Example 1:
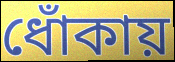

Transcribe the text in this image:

ধোঁকায়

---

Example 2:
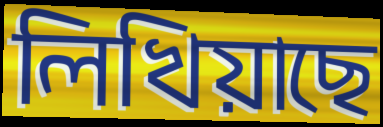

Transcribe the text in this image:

লিখিয়াছে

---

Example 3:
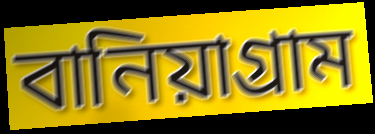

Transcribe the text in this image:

বানিয়াগ্রাম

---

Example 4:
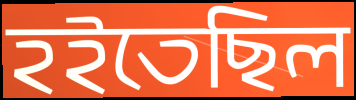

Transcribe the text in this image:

হইতেছিল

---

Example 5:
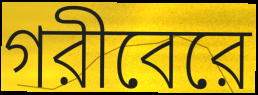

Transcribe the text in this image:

গরীবেরে